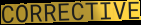
CORRECTIVE